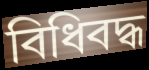
বিধিবদ্ধ